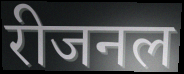
रीजनल